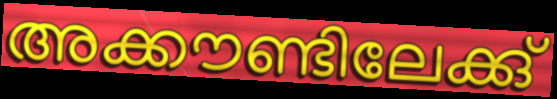
അക്കൗണ്ടിലേക്കു്